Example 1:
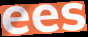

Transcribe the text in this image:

ees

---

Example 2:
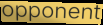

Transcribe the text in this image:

opponent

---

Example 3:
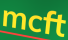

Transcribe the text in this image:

mcft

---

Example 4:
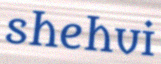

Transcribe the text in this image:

shehui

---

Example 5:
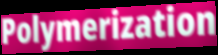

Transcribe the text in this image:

Polymerization